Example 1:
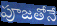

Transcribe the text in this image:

పూజతోనే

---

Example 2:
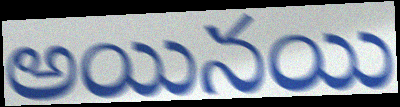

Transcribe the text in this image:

అయినయి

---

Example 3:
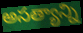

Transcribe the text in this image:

అసత్యాన్ని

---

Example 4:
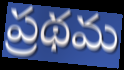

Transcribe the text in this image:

ప్రథమ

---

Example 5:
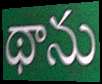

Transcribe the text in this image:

థాను